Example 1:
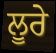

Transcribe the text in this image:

ਲੂਰੇ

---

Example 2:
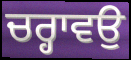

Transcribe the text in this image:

ਚਰ੍ਹਾਵਉ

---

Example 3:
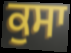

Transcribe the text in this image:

ਕੁਸਾ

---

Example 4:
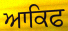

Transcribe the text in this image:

ਆਕਿਫ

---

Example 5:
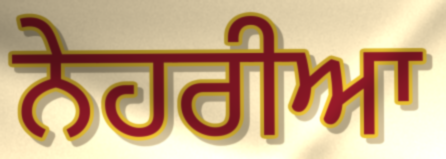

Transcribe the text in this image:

ਨੇਹਰੀਆ